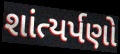
શાંત્યર્પણો